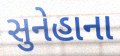
સુનેહાના